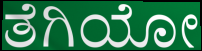
ತೆಗಿಯೋ